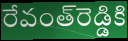
రేవంత్‌రెడ్డికి